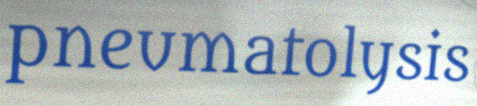
pneumatolysis